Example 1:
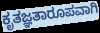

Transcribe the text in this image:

ಕೃತಜ್ಞತಾರೂಪವಾಗಿ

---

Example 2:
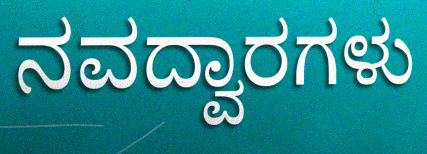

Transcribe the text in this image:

ನವದ್ವಾರಗಳು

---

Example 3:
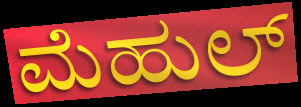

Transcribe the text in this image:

ಮೆಹುಲ್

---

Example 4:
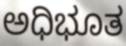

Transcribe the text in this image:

ಅಧಿಭೂತ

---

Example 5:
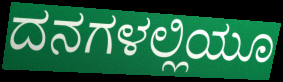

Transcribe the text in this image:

ದನಗಳಲ್ಲಿಯೂ